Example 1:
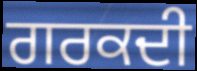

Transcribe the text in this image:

ਗਰਕਦੀ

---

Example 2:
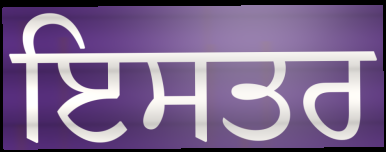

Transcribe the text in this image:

ਇਸਤਰ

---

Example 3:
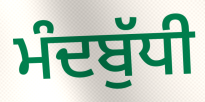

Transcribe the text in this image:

ਮੰਦਬੁੱਧੀ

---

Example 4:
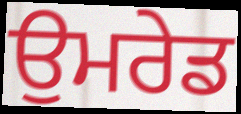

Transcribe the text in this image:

ਉਮਰੇਡ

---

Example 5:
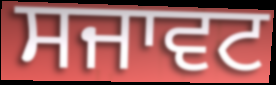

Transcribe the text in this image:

ਸਜਾਵਟ